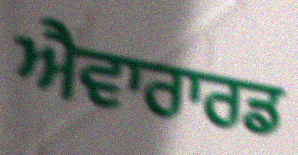
ਐਵਾਰਾਰਡ